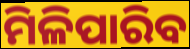
ମିଳିପାରିବ